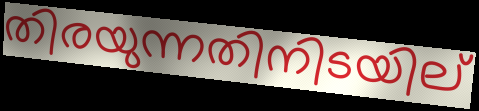
തിരയുന്നതിനിടയില്